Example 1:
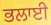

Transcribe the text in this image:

ਭਲਾਈ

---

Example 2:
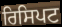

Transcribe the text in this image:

ਰਿਸਿਪਟ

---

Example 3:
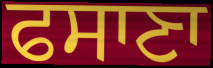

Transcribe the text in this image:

ਫਸਾਣਾ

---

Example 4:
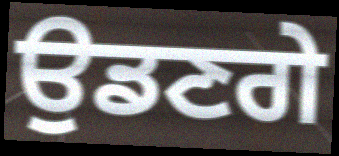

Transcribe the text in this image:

ਉਡਣਗੇ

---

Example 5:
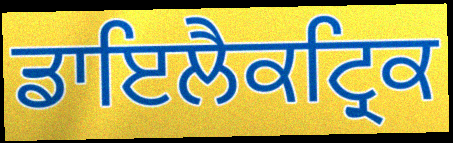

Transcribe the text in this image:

ਡਾਇਲੈਕਟ੍ਰਿਕ